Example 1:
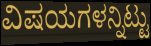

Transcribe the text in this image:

ವಿಷಯಗಳನ್ನಿಟ್ಟು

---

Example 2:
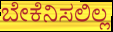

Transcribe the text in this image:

ಬೇಕೆನಿಸಲಿಲ್ಲ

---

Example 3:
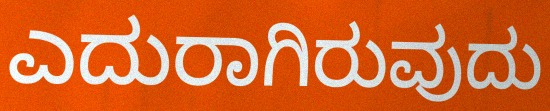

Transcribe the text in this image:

ಎದುರಾಗಿರುವುದು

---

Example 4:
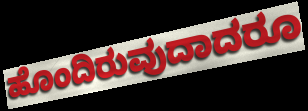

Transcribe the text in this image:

ಹೊಂದಿರುವುದಾದರೂ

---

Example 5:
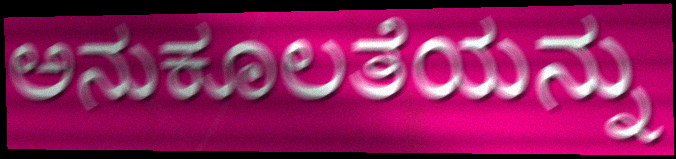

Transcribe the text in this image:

ಅನುಕೂಲತೆಯನ್ನು